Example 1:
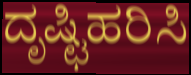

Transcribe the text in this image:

ದೃಷ್ಟಿಹರಿಸಿ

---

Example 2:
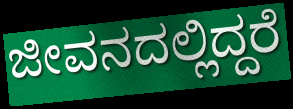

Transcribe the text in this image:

ಜೀವನದಲ್ಲಿದ್ದರೆ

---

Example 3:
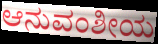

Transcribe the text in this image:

ಆನುವಂಶೀಯ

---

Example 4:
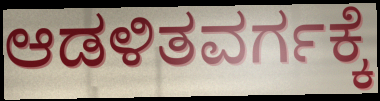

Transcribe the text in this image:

ಆಡಳಿತವರ್ಗಕ್ಕೆ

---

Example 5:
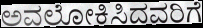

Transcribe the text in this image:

ಅವಲೋಕಿಸಿದವರಿಗೆ